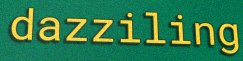
dazziling